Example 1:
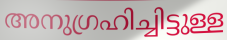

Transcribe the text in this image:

അനുഗ്രഹിച്ചിട്ടുള്ള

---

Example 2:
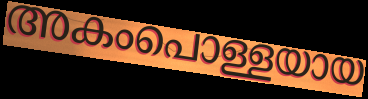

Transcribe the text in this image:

അകംപൊള്ളയായ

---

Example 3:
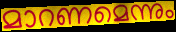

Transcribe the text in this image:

മാറണമെന്നും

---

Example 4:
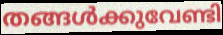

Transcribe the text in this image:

തങ്ങൾക്കുവേണ്ടി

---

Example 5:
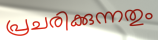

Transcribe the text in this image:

പ്രചരിക്കുന്നതും